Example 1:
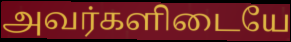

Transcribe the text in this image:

அவர்களிடையே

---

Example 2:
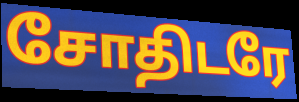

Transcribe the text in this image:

சோதிடரே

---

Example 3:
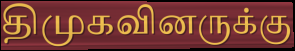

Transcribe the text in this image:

திமுகவினருக்கு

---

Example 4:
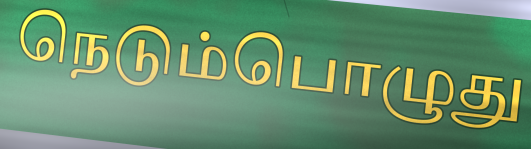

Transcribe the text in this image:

நெடும்பொழுது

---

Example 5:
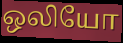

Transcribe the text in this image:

ஒலியோ